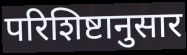
परिशिष्टानुसार